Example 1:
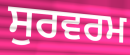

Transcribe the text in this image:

ਸੁਰਵਰਮ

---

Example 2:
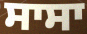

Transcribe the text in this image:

ਸਾਸਾ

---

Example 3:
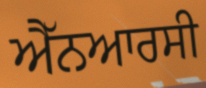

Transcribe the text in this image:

ਐੱਨਆਰਸੀ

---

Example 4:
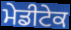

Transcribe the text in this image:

ਮੇਡੀਟੇਕ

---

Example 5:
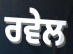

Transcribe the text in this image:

ਰਵੇਲ